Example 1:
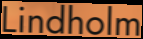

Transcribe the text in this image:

Lindholm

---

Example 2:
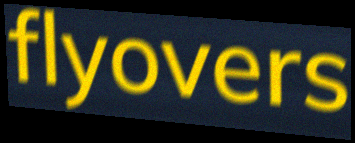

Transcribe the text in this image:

flyovers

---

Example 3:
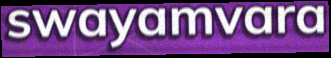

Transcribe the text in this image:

swayamvara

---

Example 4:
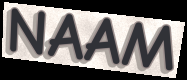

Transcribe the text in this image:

NAAM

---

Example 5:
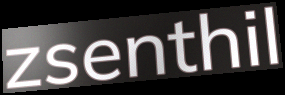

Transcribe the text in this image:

zsenthil